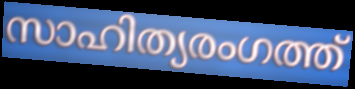
സാഹിത്യരംഗത്ത്